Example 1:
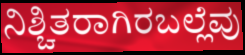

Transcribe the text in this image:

ನಿಶ್ಚಿತರಾಗಿರಬಲ್ಲೆವು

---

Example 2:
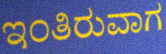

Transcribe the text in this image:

ಇಂತಿರುವಾಗ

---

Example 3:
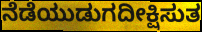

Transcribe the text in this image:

ನೆಡೆಯುಡುಗದೀಕ್ಷಿಸುತ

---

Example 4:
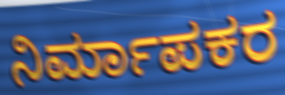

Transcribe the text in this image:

ನಿರ್ಮಾಪಕರ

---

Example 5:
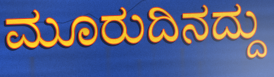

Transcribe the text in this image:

ಮೂರುದಿನದ್ದು